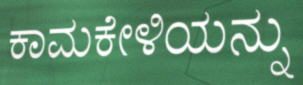
ಕಾಮಕೇಳಿಯನ್ನು